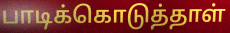
பாடிக்கொடுத்தாள்